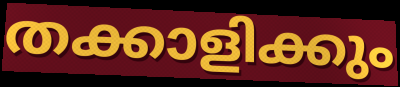
തക്കാളിക്കും